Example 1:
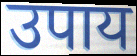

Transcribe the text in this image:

उपाय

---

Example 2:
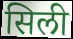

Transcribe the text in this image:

सिली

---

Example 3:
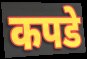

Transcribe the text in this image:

कपडे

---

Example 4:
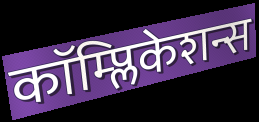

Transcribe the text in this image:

कॉम्प्लिकेशन्स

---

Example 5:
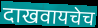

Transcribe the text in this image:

दाखवायचेच